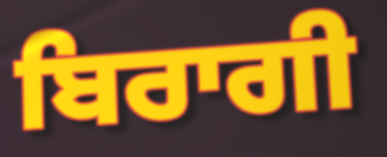
ਬਿਰਾਗੀ